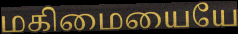
மகிமையையே